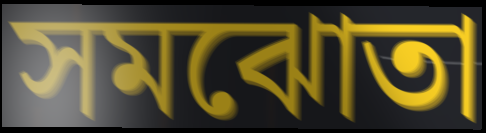
সমঝোতা